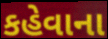
કહેવાના